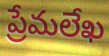
ప్రేమలేఖ